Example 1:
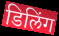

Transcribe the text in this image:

डिलिंग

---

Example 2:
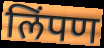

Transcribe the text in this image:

लिंपण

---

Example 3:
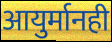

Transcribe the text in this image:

आयुर्मानही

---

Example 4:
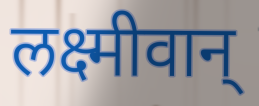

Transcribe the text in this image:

लक्ष्मीवान्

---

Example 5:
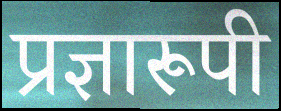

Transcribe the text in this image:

प्रज्ञारूपी